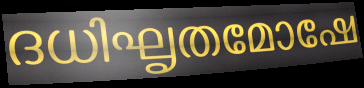
ദധിഘൃതമോഷേ